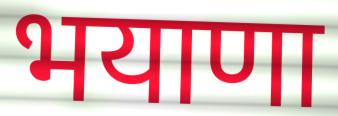
भयाणा